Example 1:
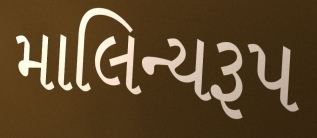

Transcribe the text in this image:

માલિન્યરૂપ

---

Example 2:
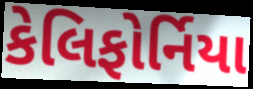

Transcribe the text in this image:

કેલિફોર્નિયા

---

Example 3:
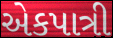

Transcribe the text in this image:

એકપાત્રી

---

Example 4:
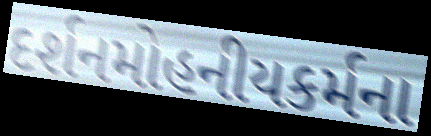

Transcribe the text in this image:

દર્શનમોહનીયકર્મના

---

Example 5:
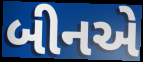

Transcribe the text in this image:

બીનએ